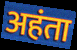
अहंता